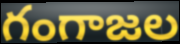
గంగాజల